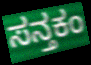
ಸನ್ತಕಂ